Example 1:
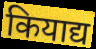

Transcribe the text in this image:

कियाद्य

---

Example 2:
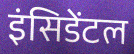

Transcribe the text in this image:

इंसिडेंटल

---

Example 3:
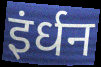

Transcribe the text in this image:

इंर्धन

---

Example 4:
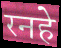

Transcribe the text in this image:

रनहे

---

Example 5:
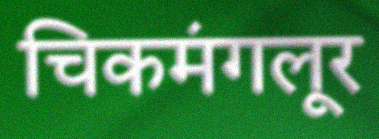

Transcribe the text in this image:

चिकमंगलूर